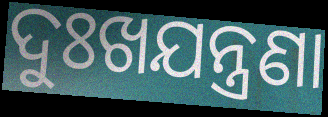
ଦୁଃଖଯନ୍ତ୍ରଣା